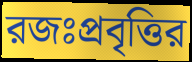
রজঃপ্রবৃত্তির